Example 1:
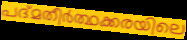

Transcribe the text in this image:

പദ്മതീർത്ഥക്കരയിലെ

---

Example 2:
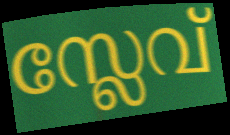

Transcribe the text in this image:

സ്ലേവ്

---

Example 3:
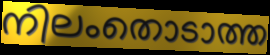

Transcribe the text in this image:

നിലംതൊടാത്ത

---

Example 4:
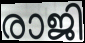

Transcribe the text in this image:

രാജി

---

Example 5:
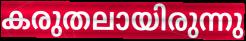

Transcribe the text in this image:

കരുതലായിരുന്നു